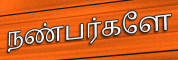
நண்பர்களே